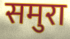
समुरा